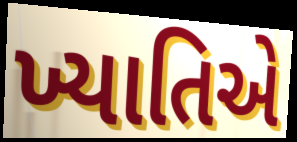
ખ્યાતિએ